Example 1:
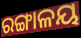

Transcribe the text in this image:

ରଙ୍ଗାଳୟ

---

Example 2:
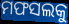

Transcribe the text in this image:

ମଫସଲକୁ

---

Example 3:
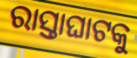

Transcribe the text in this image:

ରାସ୍ତାଘାଟକୁ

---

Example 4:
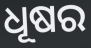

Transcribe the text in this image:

ଧୂଷର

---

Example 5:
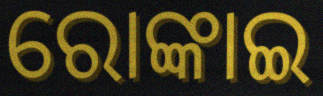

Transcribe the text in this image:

ରୋଙ୍କାଇ